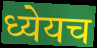
ध्येयच